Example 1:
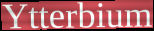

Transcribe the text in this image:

Ytterbium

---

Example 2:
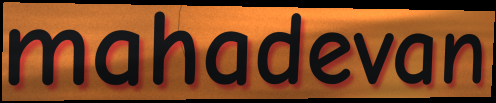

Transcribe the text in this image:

mahadevan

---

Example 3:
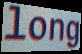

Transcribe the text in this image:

long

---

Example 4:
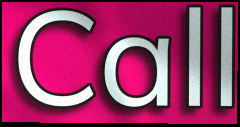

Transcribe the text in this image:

Call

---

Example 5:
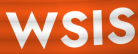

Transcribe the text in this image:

WSIS